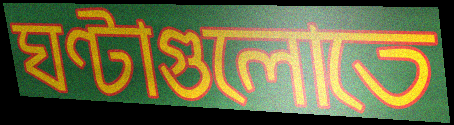
ঘণ্টাগুলোতে